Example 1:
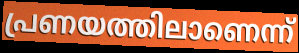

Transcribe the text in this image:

പ്രണയത്തിലാണെന്ന്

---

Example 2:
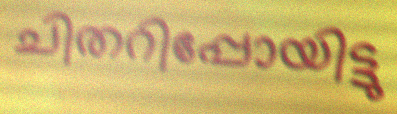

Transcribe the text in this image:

ചിതറിപ്പോയിട്ടു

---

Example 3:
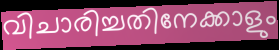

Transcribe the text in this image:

വിചാരിച്ചതിനേക്കാളും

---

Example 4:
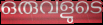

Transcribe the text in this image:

ഒരുവളുടെ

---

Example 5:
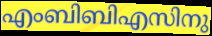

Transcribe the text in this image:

എംബിബിഎസിനു